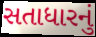
સતાધારનું